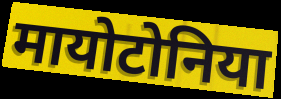
मायोटोनिया